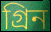
গ্রিন